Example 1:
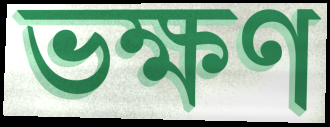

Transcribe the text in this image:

ভক্ষণ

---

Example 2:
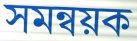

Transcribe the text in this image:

সমন্বয়ক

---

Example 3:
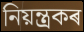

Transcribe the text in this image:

নিয়ন্ত্ৰকৰ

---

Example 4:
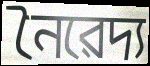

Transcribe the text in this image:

নৈৱেদ্য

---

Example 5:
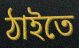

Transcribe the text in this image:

ঠাইতে